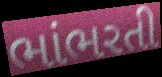
ભાંભરતી